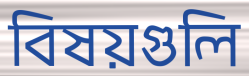
বিষয়গুলি